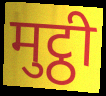
मुट्ठी